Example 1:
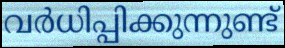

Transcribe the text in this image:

വർധിപ്പിക്കുന്നുണ്ട്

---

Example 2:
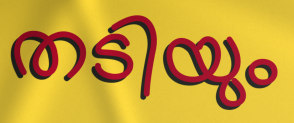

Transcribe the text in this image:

തടിയും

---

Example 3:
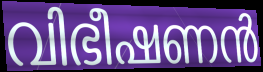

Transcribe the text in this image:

വിഭീഷണൻ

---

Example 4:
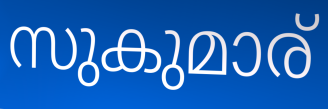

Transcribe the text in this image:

സുകുമാര്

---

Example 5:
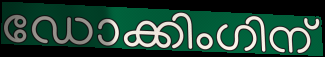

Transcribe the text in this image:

ഡോക്കിംഗിന്